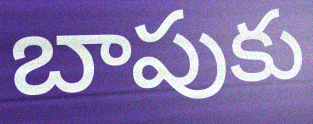
బాపుకు